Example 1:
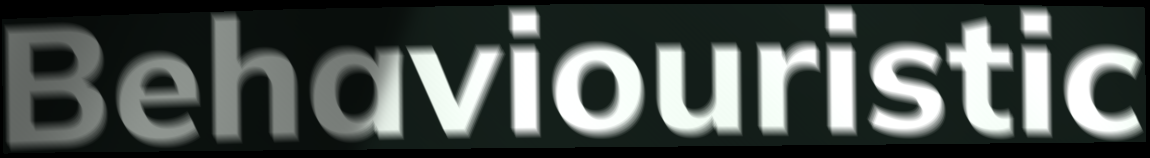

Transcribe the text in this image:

Behaviouristic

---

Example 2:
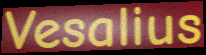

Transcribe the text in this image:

Vesalius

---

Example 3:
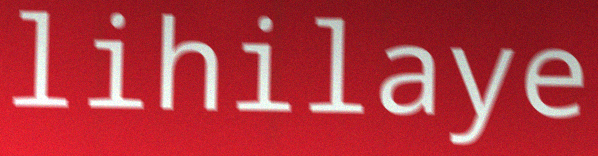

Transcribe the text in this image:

lihilaye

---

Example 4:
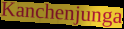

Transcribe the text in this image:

Kanchenjunga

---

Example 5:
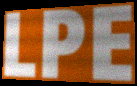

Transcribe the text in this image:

LPE